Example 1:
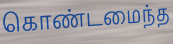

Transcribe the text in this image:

கொண்டமைந்த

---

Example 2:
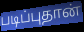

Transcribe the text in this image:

படிப்புதான்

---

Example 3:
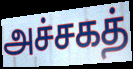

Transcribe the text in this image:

அச்சகத்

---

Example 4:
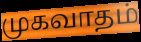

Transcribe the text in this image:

முகவாதம்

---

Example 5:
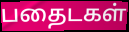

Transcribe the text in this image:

பதைடகள்